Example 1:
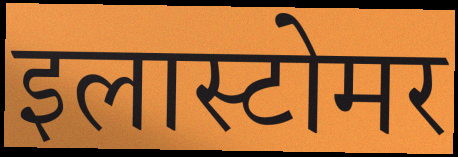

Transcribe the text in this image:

इलास्टोमर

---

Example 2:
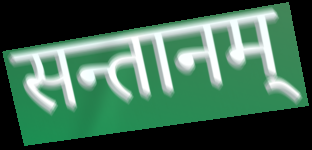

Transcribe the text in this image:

सन्तानम्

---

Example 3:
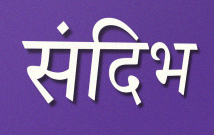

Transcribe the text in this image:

संदिभ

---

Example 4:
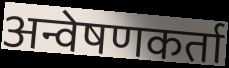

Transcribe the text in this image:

अन्वेषणकर्ता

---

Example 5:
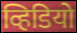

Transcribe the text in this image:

व्हिडियो